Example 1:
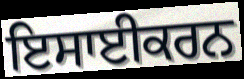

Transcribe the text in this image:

ਇਸਾਈਕਰਨ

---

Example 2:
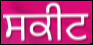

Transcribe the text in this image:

ਸਕੀਟ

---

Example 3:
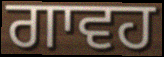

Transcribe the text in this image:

ਗਾਵਹ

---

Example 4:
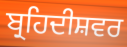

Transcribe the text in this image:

ਬ੍ਰਹਿਦੀਸ਼ਵਰ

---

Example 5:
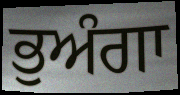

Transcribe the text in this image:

ਭੁਅੰਗਾ